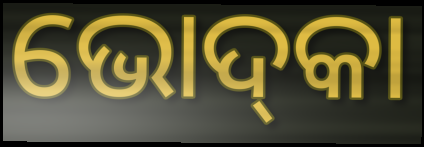
ଭୋଦ୍‌କା